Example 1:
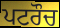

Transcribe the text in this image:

ਪਟਰੌਚ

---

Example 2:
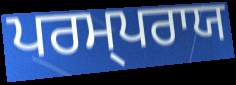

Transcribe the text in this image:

ਪਰਮ੍ਪਰਾਯ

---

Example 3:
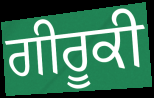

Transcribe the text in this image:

ਗੀਰੂਕੀ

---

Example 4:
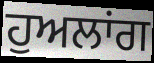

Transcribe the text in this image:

ਹੁਅਲਾਂਗ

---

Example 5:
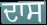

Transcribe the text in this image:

ਦਾਸ